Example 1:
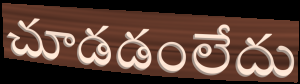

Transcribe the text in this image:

చూడడంలేదు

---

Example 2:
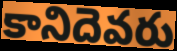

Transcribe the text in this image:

కానిదెవరు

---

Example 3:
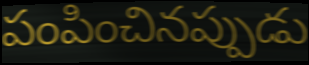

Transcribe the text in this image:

పంపించినప్పుడు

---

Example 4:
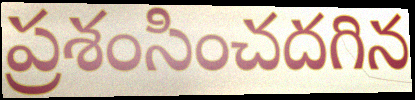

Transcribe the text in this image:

ప్రశంసించదగిన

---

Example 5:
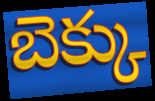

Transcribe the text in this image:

బెక్కు